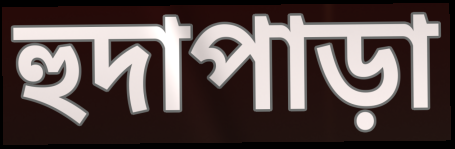
হুদাপাড়া